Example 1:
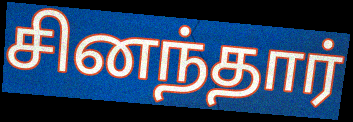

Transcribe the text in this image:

சினந்தார்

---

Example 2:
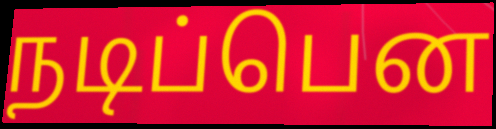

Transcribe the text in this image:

நடிப்பென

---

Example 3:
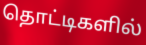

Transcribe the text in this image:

தொட்டிகளில்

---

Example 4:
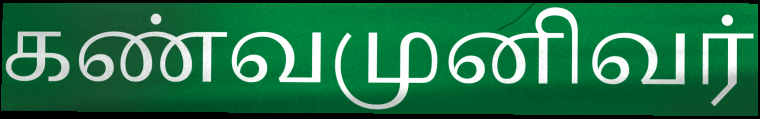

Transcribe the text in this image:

கண்வமுனிவர்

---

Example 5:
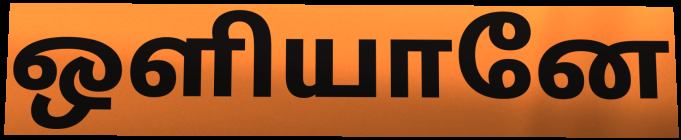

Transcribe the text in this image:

ஒளியானே